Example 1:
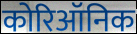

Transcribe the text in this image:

कोरिऑनिक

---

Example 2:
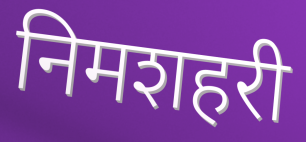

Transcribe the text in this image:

निमशहरी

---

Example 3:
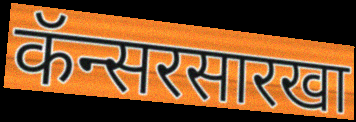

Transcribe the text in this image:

कॅन्सरसारखा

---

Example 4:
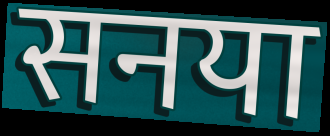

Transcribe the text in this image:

सनया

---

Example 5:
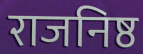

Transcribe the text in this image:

राजनिष्ठ